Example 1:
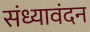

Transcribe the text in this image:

संध्यावंदन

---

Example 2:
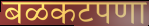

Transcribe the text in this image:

बळकटपणा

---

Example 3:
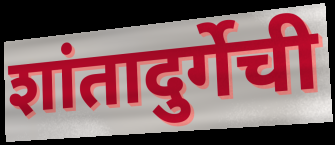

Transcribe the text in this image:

शांतादुर्गेची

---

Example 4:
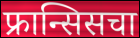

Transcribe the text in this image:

फ्रान्सिसचा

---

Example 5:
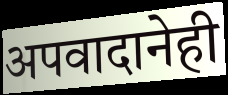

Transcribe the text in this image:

अपवादानेही